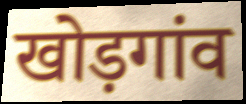
खोड़गांव